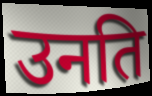
उनति